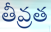
తీవ్రత